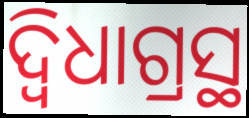
ଦ୍ବିଧାଗ୍ରସ୍ଥ